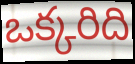
ఒక్కరిది